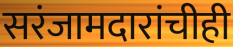
सरंजामदारांचीही